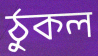
ঠুকল